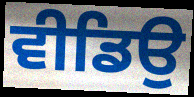
ਵੀਡਿਉ